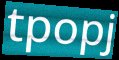
tpopj